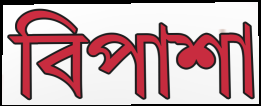
বিপাশা